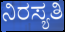
ನಿರಸ್ಯತಿ